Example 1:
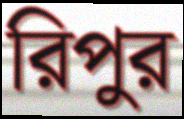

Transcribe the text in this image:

রিপুর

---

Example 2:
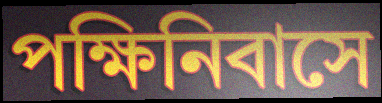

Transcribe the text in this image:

পক্ষিনিবাসে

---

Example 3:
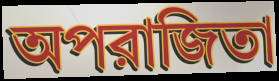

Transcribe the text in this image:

অপরাজিতা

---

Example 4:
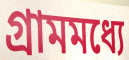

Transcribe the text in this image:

গ্রামমধ্যে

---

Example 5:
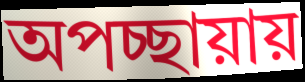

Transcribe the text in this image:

অপচ্ছায়ায়